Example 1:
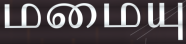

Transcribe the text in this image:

மமையு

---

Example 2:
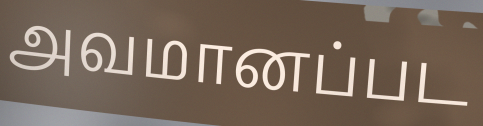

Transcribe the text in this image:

அவமானப்பட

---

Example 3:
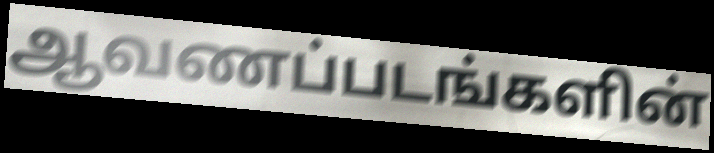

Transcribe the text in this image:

ஆவணப்படங்களின்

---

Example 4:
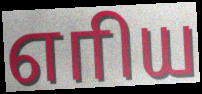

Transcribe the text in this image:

எரிய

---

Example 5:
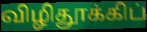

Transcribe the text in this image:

விழிதூக்கிப்